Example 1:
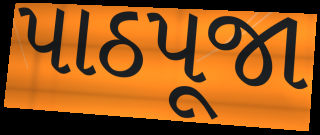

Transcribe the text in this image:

પાઠપૂજા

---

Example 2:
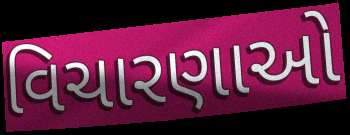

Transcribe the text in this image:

વિચારણાઓ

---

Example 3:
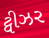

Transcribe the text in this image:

ટ્વીઝર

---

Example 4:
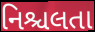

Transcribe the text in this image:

નિશ્ચલતા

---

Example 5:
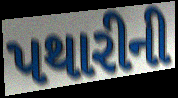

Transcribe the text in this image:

પથારીની